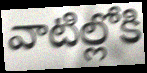
వాటిల్లోకి